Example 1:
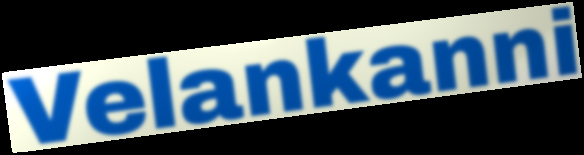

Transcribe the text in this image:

Velankanni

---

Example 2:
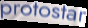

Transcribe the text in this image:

protostar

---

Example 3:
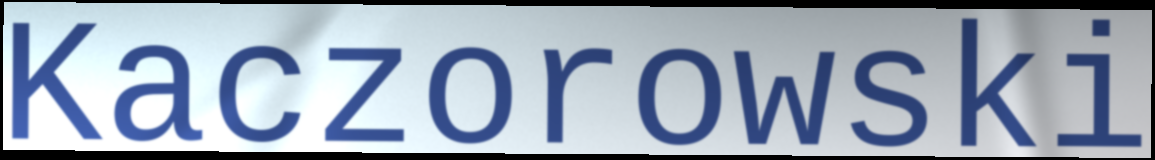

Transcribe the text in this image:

Kaczorowski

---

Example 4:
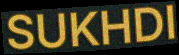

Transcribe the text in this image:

SUKHDI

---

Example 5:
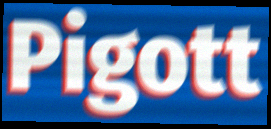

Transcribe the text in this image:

Pigott